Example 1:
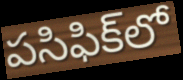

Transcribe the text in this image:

పసిఫిక్‌లో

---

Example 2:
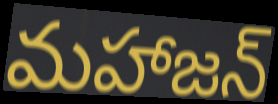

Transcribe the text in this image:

మహాజన్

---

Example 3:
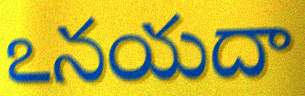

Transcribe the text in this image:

ఽనయదా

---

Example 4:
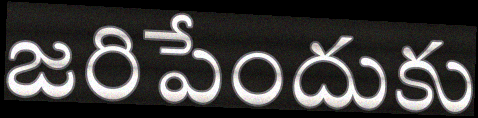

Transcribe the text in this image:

జరిపేందుకు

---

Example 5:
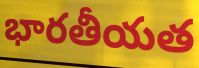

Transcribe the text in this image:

భారతీయత